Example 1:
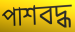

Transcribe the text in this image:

পাশবদ্ধ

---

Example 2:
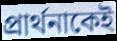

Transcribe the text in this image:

প্রার্থনাকেই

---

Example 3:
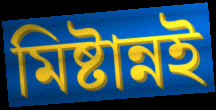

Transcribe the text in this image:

মিষ্টান্নই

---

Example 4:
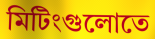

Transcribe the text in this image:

মিটিংগুলোতে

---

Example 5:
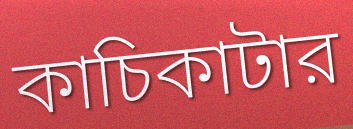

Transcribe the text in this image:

কাচিকাটার